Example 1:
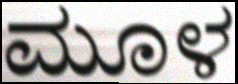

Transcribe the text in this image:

ಮೂಳ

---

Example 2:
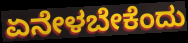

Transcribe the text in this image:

ಏನೇಳಬೇಕೆಂದು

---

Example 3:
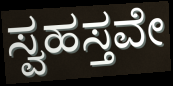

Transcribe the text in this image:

ಸ್ವಹಸ್ತವೇ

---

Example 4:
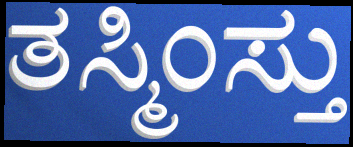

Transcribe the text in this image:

ತಸ್ಮಿಂಸ್ತು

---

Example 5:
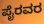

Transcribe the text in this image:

ಪೈರವರ